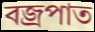
বজ্ৰপাত